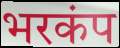
भरकंप